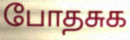
போதசுக